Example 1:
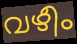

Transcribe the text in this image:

വഴീം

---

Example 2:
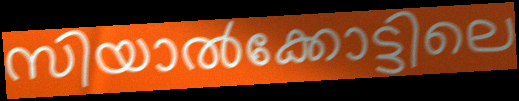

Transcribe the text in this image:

സിയാൽക്കോട്ടിലെ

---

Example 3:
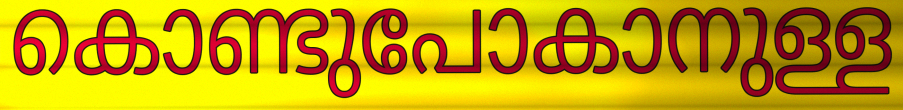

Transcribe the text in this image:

കൊണ്ടുപോകാനുള്ള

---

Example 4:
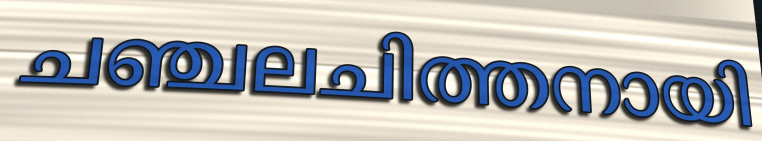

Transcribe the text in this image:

ചഞ്ചലചിത്തനായി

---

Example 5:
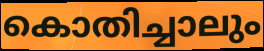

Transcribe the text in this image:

കൊതിച്ചാലും